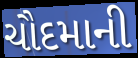
ચૌદમાની